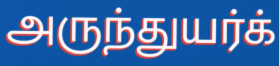
அருந்துயர்க்